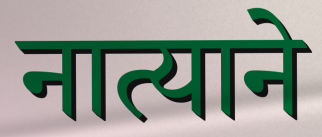
नात्याने